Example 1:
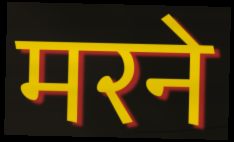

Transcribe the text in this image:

मरने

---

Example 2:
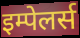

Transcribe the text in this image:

इम्पेलर्स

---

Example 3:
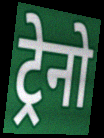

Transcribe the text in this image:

ट्रेनो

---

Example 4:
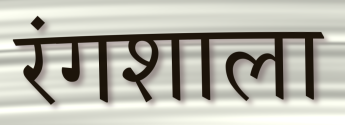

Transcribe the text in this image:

रंगशाला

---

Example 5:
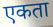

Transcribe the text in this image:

एकता